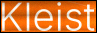
Kleist